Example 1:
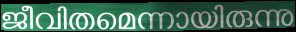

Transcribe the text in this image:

ജീവിതമെന്നായിരുന്നു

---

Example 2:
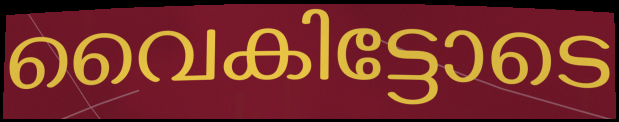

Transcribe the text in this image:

വൈകിട്ടോടെ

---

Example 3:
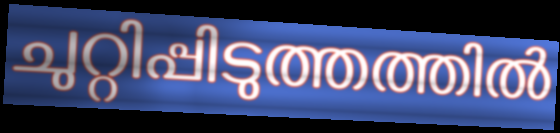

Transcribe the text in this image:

ചുറ്റിപ്പിടുത്തത്തിൽ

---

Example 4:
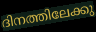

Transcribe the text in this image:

ദിനത്തിലേക്കു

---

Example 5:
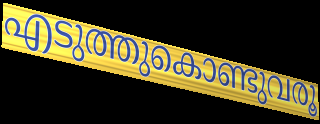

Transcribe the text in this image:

എടുത്തുകൊണ്ടുവരൂ